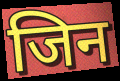
जिन